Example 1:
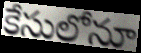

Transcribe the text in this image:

కేసులోనూ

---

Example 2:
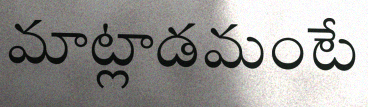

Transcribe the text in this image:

మాట్లాడమంటే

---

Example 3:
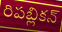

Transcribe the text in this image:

రిపబ్లికన్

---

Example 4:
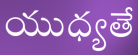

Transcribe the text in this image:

యుధ్యతే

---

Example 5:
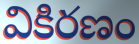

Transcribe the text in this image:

వికిరణం